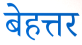
बेहत्तर